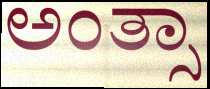
ಅಂತ್ಸಾ